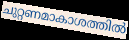
ചുറ്റണമാകാശത്തിൽ